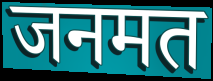
जनमत